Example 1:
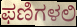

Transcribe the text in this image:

ಫಣಿಗಳಲಿ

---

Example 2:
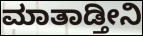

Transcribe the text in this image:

ಮಾತಾಡ್ತೀನಿ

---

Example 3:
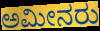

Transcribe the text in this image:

ಅಮೀನರು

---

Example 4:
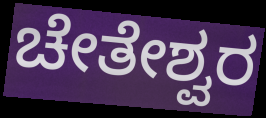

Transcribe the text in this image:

ಚೇತೇಶ್ವರ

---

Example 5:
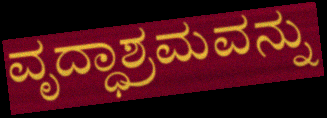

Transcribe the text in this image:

ವೃದ್ಧಾಶ್ರಮವನ್ನು